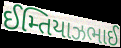
ઈમ્તિયાઝભાઈ